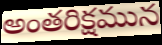
అంతరిక్షమున